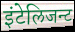
इंटेलिजन्ट